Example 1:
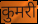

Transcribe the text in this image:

कुमरी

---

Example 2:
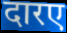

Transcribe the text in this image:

दारए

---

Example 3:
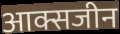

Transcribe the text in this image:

आक्सजीन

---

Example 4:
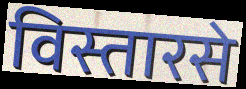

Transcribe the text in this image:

विस्तारसे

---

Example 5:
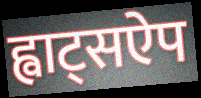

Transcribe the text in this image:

ह्वाट्सऐप